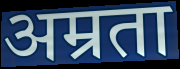
अम्रता